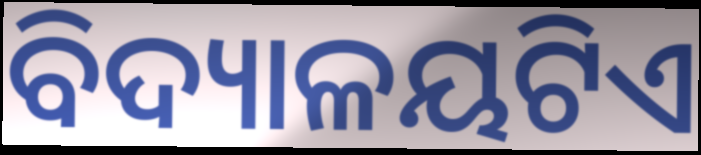
ବିଦ୍ୟାଳୟଟିଏ